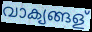
വാക്യങ്ങള്